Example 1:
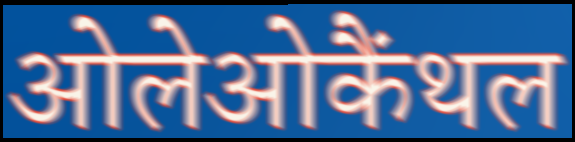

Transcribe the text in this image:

ओलेओकैंथल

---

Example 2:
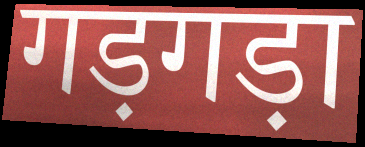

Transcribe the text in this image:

गड़गड़ा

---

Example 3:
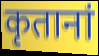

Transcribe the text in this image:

कृतानां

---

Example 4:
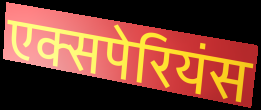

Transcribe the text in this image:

एक्सपेरियंस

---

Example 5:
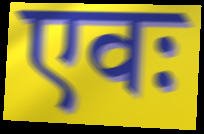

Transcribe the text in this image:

एवः